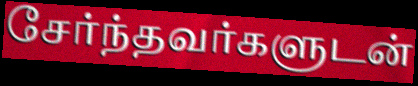
சேர்ந்தவர்களுடன்